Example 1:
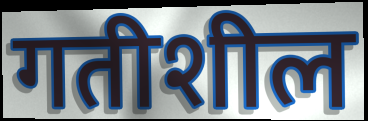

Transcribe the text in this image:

गतीशील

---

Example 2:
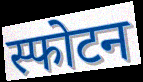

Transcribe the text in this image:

स्फोटन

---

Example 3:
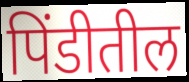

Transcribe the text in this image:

पिंडीतील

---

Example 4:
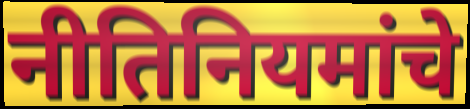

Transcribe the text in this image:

नीतिनियमांचे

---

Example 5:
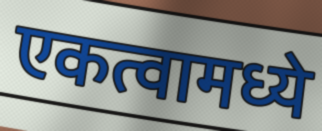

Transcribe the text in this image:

एकत्वामध्ये